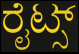
ರೈಟ್ಸ್